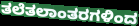
ತಲೆತಲಾಂತರಗಳಿಂದ